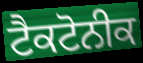
ਟੈਕਟੋਨੀਕ